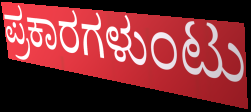
ಪ್ರಕಾರಗಳುಂಟು